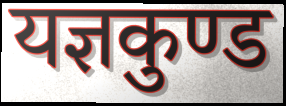
यज्ञकुण्ड